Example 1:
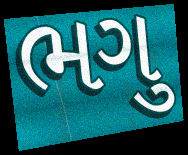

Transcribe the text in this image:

ભગુ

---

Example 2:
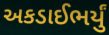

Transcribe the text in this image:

અકડાઈભર્યું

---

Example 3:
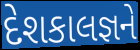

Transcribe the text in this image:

દેશકાલજ્ઞને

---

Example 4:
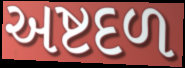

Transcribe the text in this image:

અષ્ટદળ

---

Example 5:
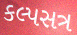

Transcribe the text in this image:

કલ્પસત્ર